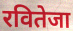
रवितेजा